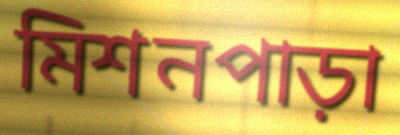
মিশনপাড়া